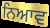
ਨਿਆਵ